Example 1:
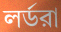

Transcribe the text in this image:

লর্ডরা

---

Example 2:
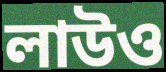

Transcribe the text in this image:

লাউও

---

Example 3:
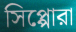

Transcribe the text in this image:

সিপ্পোরা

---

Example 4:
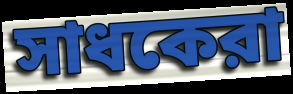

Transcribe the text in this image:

সাধকেরা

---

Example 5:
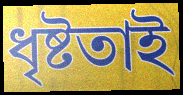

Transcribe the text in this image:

ধৃষ্টতাই